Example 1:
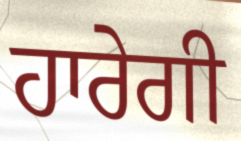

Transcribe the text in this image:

ਹਾਰੇਗੀ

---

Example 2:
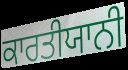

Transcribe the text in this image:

ਕਾਰਤੀਯਾਨੀ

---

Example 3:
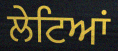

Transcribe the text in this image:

ਲੇਟਿਆਂ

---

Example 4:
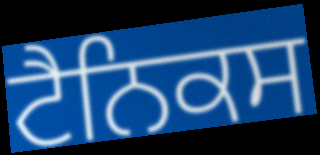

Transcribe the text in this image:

ਟੈਨਿਕਸ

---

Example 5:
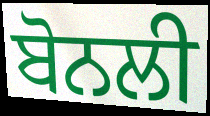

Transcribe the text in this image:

ਬੋਨਲੀ